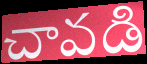
చావడి